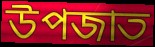
উপজাত